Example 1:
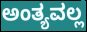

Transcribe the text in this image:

ಅಂತ್ಯವಲ್ಲ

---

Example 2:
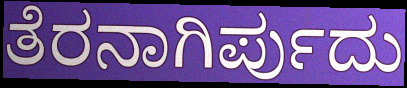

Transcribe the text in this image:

ತೆರನಾಗಿರ್ಪುದು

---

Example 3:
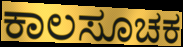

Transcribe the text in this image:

ಕಾಲಸೂಚಕ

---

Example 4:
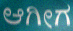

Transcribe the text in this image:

ಆಗೀಗ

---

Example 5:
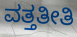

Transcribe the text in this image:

ವತ್ತತೀತಿ